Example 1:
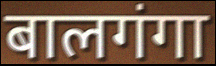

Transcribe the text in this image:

बालगंगा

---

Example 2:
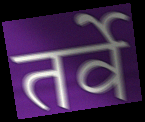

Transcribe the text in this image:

तर्वे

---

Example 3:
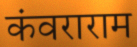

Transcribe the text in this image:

कंवराराम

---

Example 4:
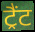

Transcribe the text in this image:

ट्रैंट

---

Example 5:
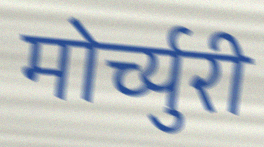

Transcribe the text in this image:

मोर्च्युरी